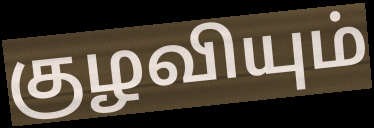
குழவியும்